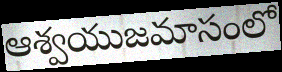
ఆశ్వయుజమాసంలో